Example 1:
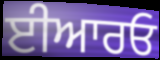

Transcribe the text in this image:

ਈਆਰਓ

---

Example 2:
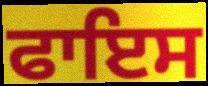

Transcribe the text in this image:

ਫਾਇਸ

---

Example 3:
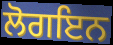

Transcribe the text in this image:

ਲੋਗਇਨ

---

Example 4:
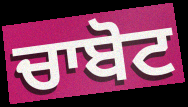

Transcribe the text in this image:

ਚਾਬੋਟ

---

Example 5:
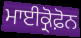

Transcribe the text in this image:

ਮਾਈਕ੍ਰੋਫ਼ੋਨ